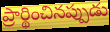
ప్రార్థించినప్పుడు